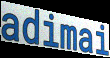
adimai